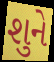
શુને